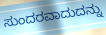
ಸುಂದರವಾದುದನ್ನು